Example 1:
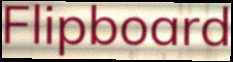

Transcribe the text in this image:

Flipboard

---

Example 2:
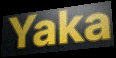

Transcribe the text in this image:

Yaka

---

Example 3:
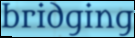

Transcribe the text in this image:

bridging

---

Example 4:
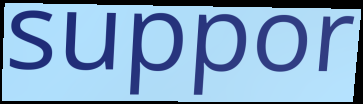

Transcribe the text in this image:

suppor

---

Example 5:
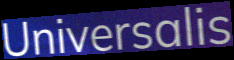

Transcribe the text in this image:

Universalis